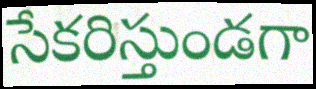
సేకరిస్తుండగా